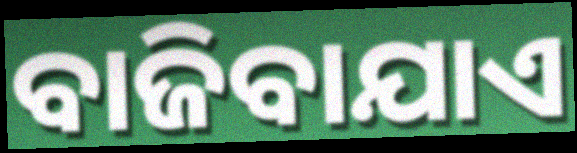
ବାଜିବାଯାଏ